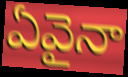
ఏవైనా